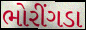
ભોરીંગડા